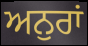
ਅਨੁਰਾਂ